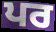
ਪਰ